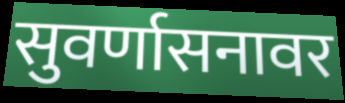
सुवर्णासनावर